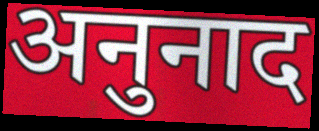
अनुनाद